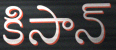
కిసాన్